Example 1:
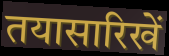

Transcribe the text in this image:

तयासारिखें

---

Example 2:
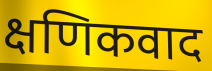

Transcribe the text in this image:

क्षणिकवाद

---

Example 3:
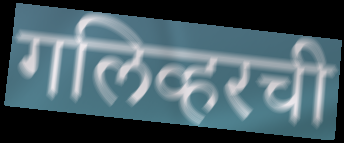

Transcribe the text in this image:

गलिव्हरची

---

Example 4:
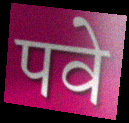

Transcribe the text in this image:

पवे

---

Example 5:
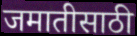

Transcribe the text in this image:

जमातीसाठी